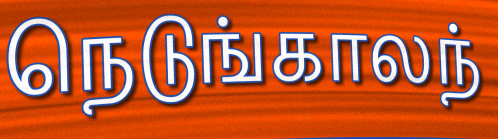
நெடுங்காலந்